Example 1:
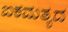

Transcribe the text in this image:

ಐಕಮತ್ಯದ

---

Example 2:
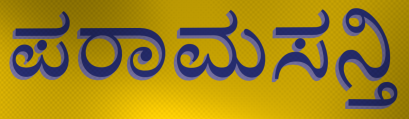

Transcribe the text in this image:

ಪರಾಮಸನ್ತಿ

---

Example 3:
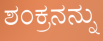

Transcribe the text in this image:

ಶಂಕ್ರನನ್ನು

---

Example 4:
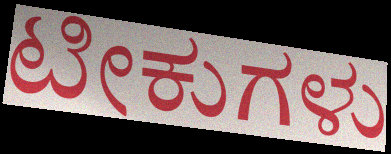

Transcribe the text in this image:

ಟೀಕುಗಳು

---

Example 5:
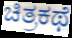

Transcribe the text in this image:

ಚಿತ್ರಕಥೆ